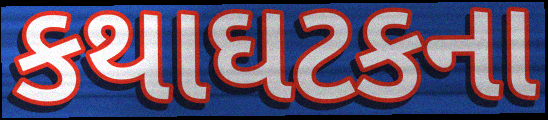
કથાઘટકના